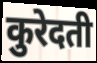
कुरेदती